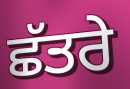
ਛੱਤਰੇ